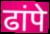
ढांपे